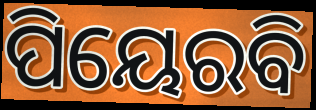
ପିୟେରବି